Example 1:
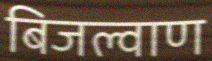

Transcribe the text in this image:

बिजल्वाण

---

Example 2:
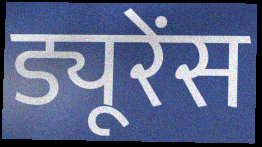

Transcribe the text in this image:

ड्यूरेंस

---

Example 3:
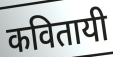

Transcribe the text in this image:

कवितायी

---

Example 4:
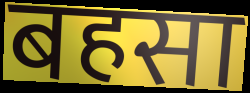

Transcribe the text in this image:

बहसा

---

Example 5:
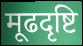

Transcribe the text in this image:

मूढदृष्टि